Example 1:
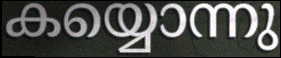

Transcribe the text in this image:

കയ്യൊന്നു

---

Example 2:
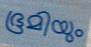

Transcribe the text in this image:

ഭൂമിയും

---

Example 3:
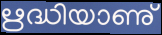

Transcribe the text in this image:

ഋദ്ധിയാണു്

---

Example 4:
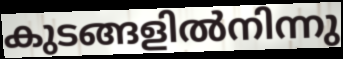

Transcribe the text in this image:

കുടങ്ങളിൽനിന്നു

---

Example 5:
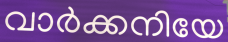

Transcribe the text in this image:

വാർക്കനിയേ